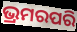
ଭ୍ରମରପରି